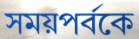
সময়পর্বকে